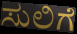
ಸುಲಿಗೆ